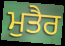
ਮੁਤੈਰ